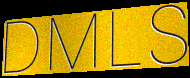
DMLS